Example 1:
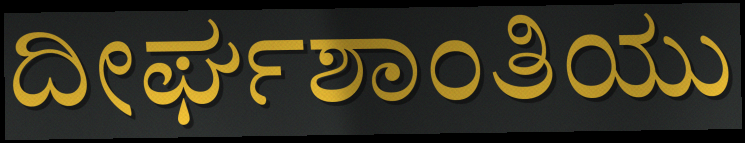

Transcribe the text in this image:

ದೀರ್ಘಶಾಂತಿಯು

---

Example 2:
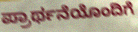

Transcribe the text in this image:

ಪ್ರಾರ್ಥನೆಯೊಂದಿಗೆ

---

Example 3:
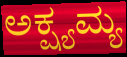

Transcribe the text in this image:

ಅಕ್ಷ್ಯಮ್ಯ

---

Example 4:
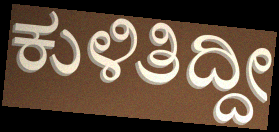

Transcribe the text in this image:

ಕುಳಿತಿದ್ದೀ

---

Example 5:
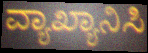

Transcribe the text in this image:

ವ್ಯಾಖ್ಯಾನಿಸಿ